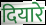
दियारे